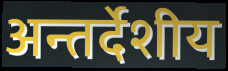
अन्तर्देशीय